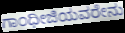
ಗಾಂಧೀಜಿಯವರೇನು